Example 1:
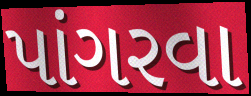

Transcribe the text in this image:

પાંગરવા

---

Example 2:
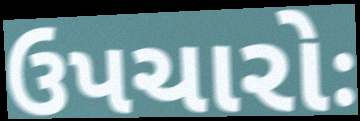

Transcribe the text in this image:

ઉપચારોઃ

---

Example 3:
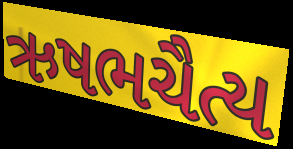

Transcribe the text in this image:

ઋષભચૈત્ય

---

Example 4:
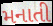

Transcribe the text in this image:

મનાતી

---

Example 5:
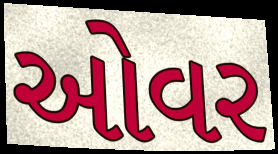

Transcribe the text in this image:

ઓવર